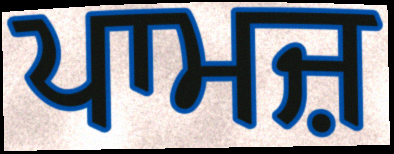
ਪਾਮਜ਼